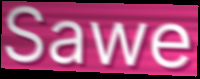
Sawe